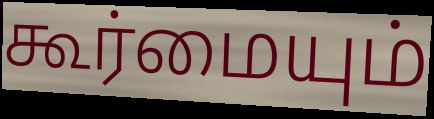
கூர்மையும்